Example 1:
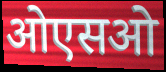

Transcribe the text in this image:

ओएसओ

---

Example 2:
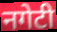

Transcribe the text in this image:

नगेटी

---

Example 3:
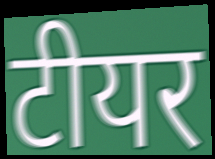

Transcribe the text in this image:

टीयर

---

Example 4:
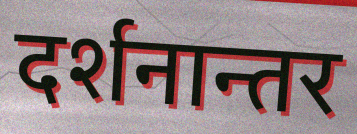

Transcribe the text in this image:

दर्शनान्तर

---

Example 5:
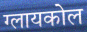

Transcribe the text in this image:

ग्लायकोल